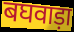
बघवाड़ा